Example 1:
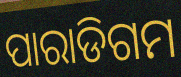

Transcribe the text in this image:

ପାରାଡିଗମ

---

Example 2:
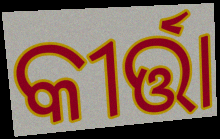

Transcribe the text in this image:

କୀର୍ତ୍ତା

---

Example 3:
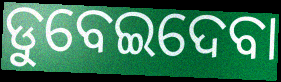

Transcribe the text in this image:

ଡୁବେଇଦେବା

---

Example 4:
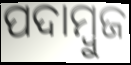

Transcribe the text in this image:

ପଦାମ୍ବୁଜ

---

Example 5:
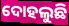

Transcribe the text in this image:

ଦୋହଲୁଛି